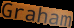
Graham